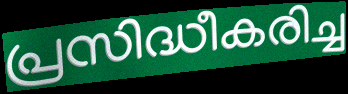
പ്രസിദ്ധീകരിച്ച